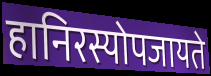
हानिरस्योपजायते